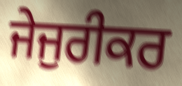
ਜੇਜੁਰੀਕਰ